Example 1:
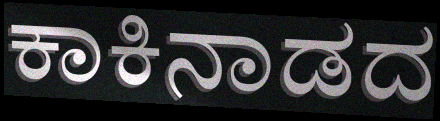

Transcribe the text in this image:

ಕಾಕಿನಾಡದ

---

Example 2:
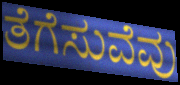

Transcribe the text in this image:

ತೆಗೆಸುವೆವು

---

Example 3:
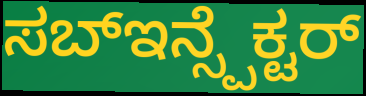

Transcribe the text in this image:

ಸಬ್ಇನ್ಸ್ಪೆಕ್ಟರ್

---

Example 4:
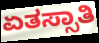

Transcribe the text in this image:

ಏತಸ್ಸಾತಿ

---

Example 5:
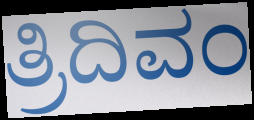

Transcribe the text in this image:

ತ್ರಿದಿವಂ